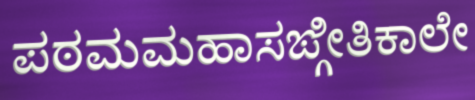
ಪಠಮಮಹಾಸಙ್ಗೀತಿಕಾಲೇ